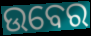
ଉବେର